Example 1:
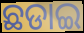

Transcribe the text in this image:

ଛଡାଇ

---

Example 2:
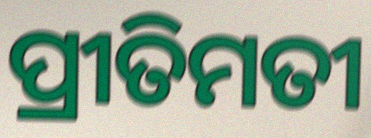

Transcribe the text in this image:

ପ୍ରୀତିମତୀ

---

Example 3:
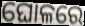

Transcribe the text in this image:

ଘୋଳରେ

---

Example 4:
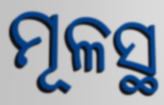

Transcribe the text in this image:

ମୂଳସ୍ଥ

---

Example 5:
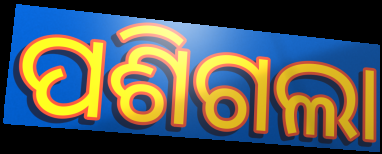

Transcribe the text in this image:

ପଶିଗଲା